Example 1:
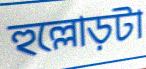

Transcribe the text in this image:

হুল্লোড়টা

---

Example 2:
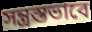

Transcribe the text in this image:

সন্ত্রস্তভাবে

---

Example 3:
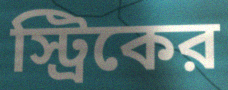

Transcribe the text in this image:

স্ট্রিকের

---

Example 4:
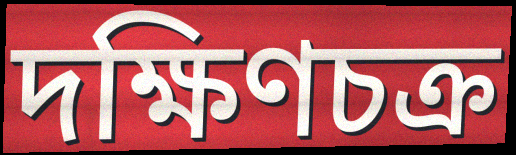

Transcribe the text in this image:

দক্ষিণচক্র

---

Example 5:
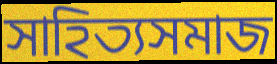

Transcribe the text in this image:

সাহিত্যসমাজ